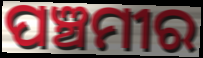
ପଞ୍ଚମୀର